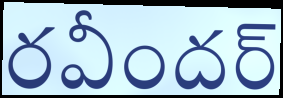
రవీందర్